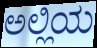
ಅಲ್ಲಿಯ